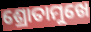
ଶ୍ରୋତାମୁଖେ